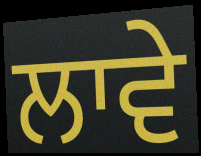
ਲਾਵੇ